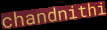
chandnithi